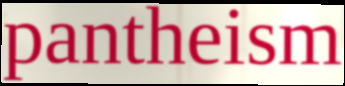
pantheism